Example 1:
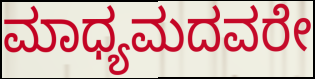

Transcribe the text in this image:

ಮಾಧ್ಯಮದವರೇ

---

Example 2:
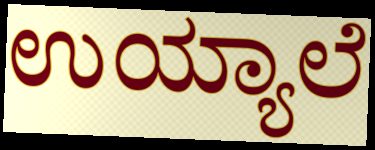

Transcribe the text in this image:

ಉಯ್ಯಾಲೆ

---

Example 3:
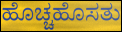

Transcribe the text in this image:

ಹೊಚ್ಚಹೊಸತು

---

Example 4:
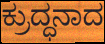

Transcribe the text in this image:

ಕ್ರುದ್ಧನಾದ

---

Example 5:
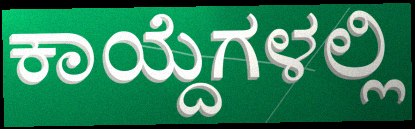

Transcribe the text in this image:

ಕಾಯ್ದೆಗಳಲ್ಲಿ